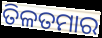
ତିଳତମାର